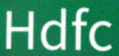
Hdfc